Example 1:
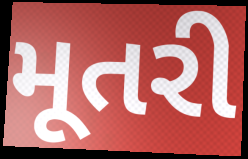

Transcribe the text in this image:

મૂતરી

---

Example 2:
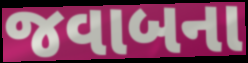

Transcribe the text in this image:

જવાબના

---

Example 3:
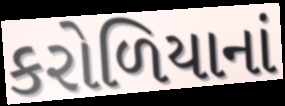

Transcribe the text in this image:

કરોળિયાનાં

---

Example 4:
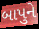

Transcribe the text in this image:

બાપુને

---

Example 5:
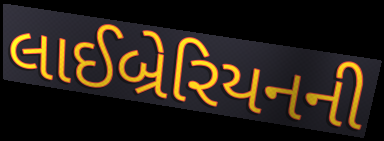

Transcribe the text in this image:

લાઈબ્રેરિયનની